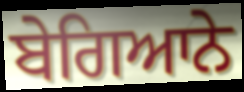
ਬੇਗਿਆਨੇ